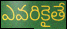
ఎవరికైతే